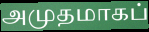
அமுதமாகப்